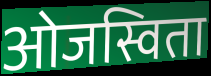
ओजस्विता